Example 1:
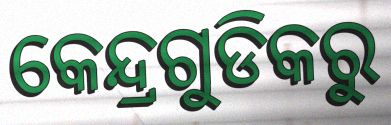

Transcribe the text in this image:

କେନ୍ଦ୍ରଗୁଡିକରୁ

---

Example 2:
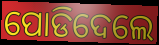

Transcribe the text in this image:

ପୋଡିଦେଲେ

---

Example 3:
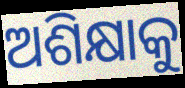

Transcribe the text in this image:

ଅଶିକ୍ଷାକୁ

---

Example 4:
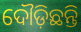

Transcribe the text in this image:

ଦୌଡ଼ିଛନ୍ତି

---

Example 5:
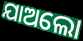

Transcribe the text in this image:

ଯାଅଲୋ